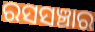
ରସସଞ୍ଚାର